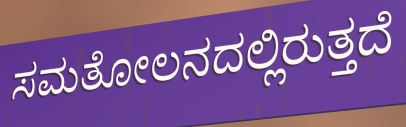
ಸಮತೋಲನದಲ್ಲಿರುತ್ತದೆ